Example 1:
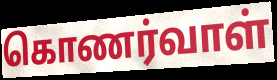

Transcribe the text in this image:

கொணர்வாள்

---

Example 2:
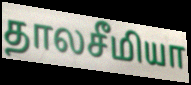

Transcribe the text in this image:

தாலசீமியா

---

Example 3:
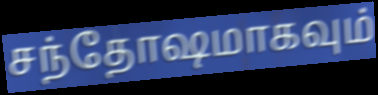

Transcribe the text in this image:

சந்தோஷமாகவும்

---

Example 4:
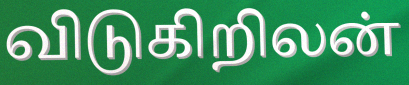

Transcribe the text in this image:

விடுகிறிலன்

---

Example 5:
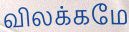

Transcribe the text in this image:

விலக்கமே